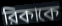
রিকাকে